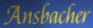
Ansbacher